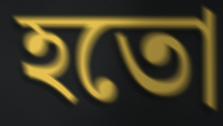
হতো